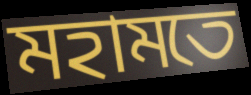
মহামতে